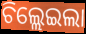
ଚିଲ୍ଲେଇଲା